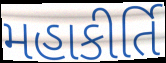
મહાકીર્તિ